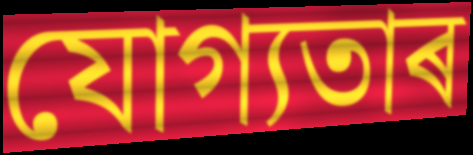
যোগ্যতাৰ